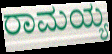
ರಾಮಯ್ಯ